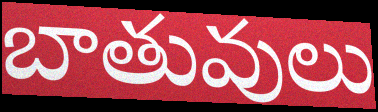
బాతువులు